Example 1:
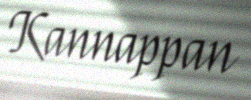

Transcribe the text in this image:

Kannappan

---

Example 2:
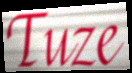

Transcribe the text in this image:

Tuze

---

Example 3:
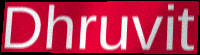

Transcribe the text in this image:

Dhruvit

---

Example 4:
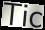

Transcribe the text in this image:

Tic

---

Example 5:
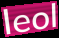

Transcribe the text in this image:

leol